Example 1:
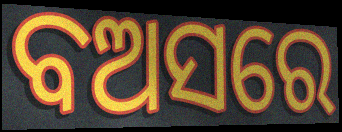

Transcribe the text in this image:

ବଅସରେ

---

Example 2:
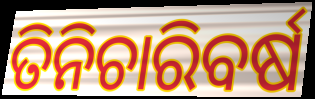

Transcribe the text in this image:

ତିନିଚାରିବର୍ଷ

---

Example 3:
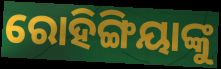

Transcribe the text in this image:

ରୋହିଙ୍ଗିୟାଙ୍କୁ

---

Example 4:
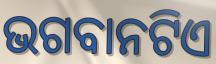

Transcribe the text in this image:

ଭଗବାନଟିଏ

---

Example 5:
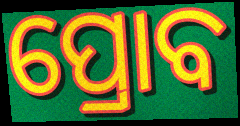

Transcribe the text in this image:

ପ୍ରୋବ